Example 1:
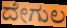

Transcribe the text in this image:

ದೇಗುಲ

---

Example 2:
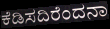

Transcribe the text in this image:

ಕೆಡಿಸದಿರೆಂದನಾ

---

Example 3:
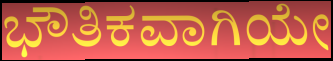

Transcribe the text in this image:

ಭೌತಿಕವಾಗಿಯೇ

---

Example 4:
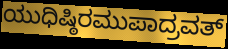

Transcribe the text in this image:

ಯುಧಿಷ್ಠಿರಮುಪಾದ್ರವತ್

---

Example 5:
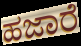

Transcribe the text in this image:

ಹಜಾರೆ